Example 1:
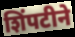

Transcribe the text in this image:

शिंपटीने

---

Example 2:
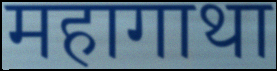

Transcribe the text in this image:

महागाथा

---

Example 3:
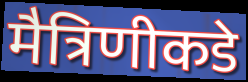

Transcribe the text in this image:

मैत्रिणीकडे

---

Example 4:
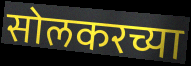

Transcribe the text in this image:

सोलकरच्या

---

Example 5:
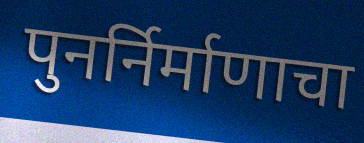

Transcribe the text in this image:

पुनर्निर्माणाचा